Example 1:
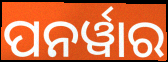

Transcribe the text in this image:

ପନର୍ୱାର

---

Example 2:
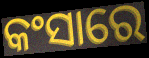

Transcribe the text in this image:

କଂସାରେ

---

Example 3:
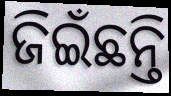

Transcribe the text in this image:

ଜିଇଁଛନ୍ତି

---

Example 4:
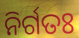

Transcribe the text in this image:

ନିର୍ଗତଃ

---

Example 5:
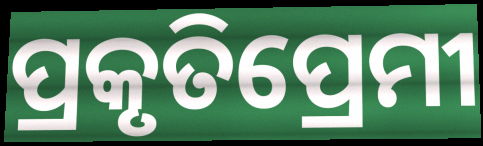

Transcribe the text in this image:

ପ୍ରକୃତିପ୍ରେମୀ